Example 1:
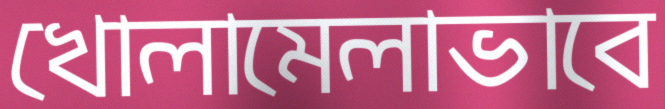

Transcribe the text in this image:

খোলামেলাভাবে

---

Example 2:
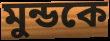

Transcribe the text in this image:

মুন্ডকে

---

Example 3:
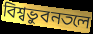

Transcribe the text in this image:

বিশ্বভুবনতলে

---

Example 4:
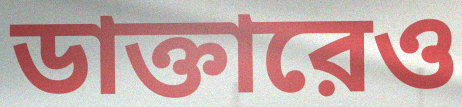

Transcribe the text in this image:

ডাক্তারেও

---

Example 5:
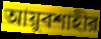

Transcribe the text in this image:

আয়ুবশাহীর